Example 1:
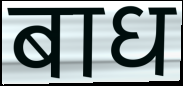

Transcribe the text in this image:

बाध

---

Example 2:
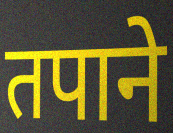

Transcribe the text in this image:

तपाने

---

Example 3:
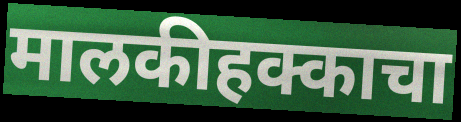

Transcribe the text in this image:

मालकीहक्काचा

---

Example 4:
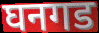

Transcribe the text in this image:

घनगड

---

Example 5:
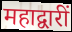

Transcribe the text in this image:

महाद्वारीं